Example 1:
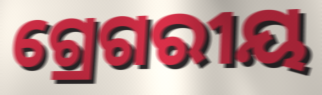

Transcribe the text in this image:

ଗ୍ରେଗରୀୟ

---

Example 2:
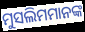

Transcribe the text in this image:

ମୁସଲିମମାନଙ୍କ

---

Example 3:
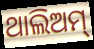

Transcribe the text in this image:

ଥାଲିଅମ୍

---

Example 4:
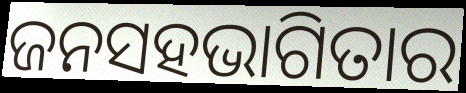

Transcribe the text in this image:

ଜନସହଭାଗିତାର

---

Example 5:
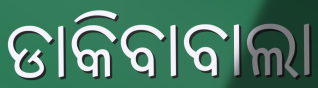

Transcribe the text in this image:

ଡାକିବାବାଲା